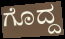
ಗೊದ್ದ